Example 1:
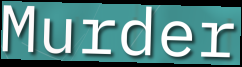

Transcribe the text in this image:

Murder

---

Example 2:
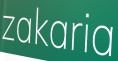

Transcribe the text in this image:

zakaria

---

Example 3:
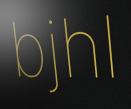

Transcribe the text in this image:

bjhl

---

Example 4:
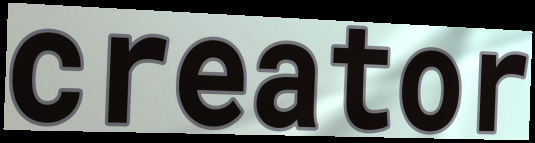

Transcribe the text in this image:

creator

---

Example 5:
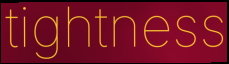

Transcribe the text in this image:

tightness